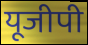
यूजीपी